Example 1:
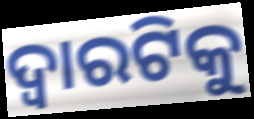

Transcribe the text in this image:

ଦ୍ଵାରଟିକୁ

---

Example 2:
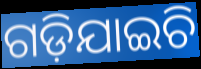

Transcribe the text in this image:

ଗଡ଼ିଯାଇଚି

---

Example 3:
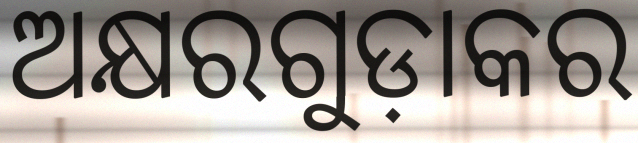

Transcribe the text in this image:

ଅକ୍ଷରଗୁଡ଼ାକର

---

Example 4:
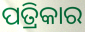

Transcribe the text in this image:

ପତ୍ରିକାର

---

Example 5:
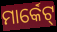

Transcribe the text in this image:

ମାର୍କେଟ୍